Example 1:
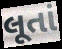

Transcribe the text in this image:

લૂતાં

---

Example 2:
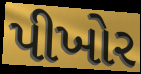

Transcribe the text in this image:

પીખોર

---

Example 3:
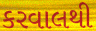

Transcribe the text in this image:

કરવાલથી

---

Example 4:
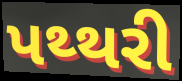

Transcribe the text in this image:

પથ્થરી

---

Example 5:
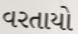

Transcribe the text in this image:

વરતાયો